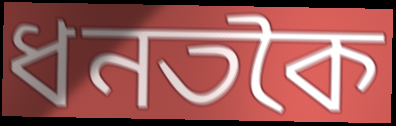
ধনতকৈ